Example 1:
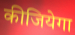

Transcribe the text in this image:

कीजियेगा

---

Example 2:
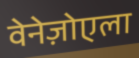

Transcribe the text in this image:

वेनेज़ोएला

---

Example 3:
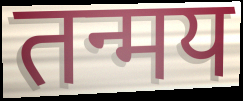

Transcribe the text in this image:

तन्मय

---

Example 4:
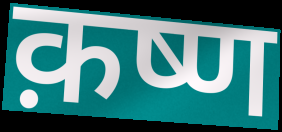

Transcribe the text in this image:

क़ष्ण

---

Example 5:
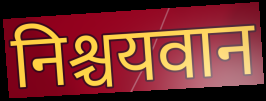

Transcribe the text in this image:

निश्चयवान